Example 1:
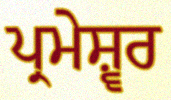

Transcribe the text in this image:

ਪ੍ਰਮੇਸ਼੍ਵਰ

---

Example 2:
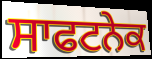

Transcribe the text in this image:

ਸਾਫਟਨੇਕ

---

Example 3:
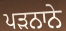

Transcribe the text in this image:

ਪੜਨਾਨੇ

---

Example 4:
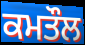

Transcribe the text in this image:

ਕਮਤੌਲ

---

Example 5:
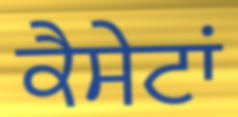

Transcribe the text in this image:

ਕੈਸੇਟਾਂ